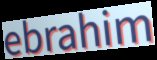
ebrahim